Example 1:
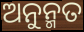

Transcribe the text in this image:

ଅନୁନ୍ମତ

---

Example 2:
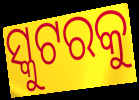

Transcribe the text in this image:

ସ୍କୁଟରକୁ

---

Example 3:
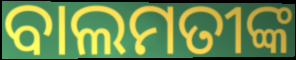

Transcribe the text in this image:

ବାଲମତୀଙ୍କ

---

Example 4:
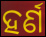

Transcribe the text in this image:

ହର୍ଣ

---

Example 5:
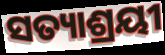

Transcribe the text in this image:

ସତ୍ୟାଶ୍ରୟୀ